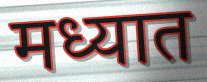
मध्यात